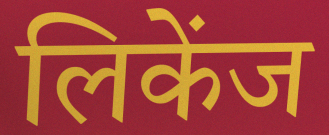
लिकेंज